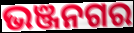
ଭଞ୍ଜନଗର